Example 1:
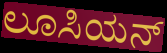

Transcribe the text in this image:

ಲೂಸಿಯನ್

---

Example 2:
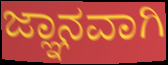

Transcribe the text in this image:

ಜ್ಞಾನವಾಗಿ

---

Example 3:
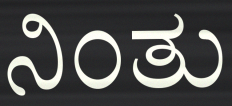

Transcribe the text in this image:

ನಿಂತು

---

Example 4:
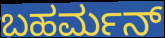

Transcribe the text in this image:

ಬಹರ್ಮನ್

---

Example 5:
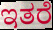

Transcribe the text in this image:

ಇತರೆ